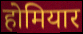
होमियार